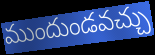
ముందుండవచ్చు